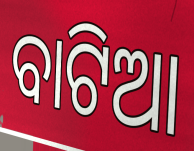
ବାଟିଆ